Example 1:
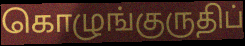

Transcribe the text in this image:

கொழுங்குருதிப்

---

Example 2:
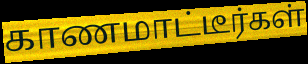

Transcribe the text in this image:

காணமாட்டீர்கள்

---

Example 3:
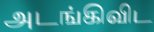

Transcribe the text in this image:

அடங்கிவிட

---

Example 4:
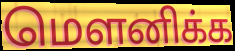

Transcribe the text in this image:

மெளனிக்க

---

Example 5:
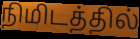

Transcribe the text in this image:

நிமிடத்தில்